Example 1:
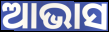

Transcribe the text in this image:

ଆଭାସ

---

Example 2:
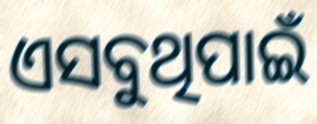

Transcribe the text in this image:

ଏସବୁଥିପାଇଁ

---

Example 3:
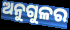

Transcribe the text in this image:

ଅନୁଗୁଳର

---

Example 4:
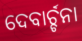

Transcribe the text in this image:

ଦେବାର୍ଚ୍ଚନା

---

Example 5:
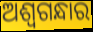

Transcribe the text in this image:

ଅଶ୍ୱଗନ୍ଧାର